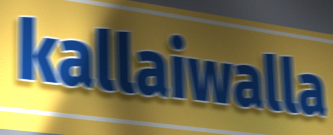
kallaiwalla